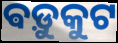
ଵଡ଼ୁକୁଟ